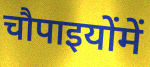
चौपाइयोंमें